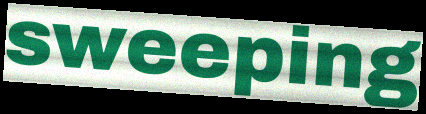
sweeping